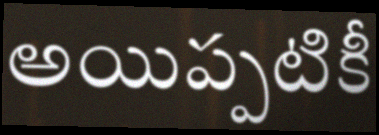
అయిప్పటికీ